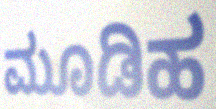
ಮೂಡಿಹ